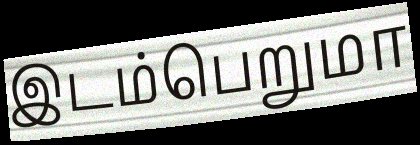
இடம்பெறுமா